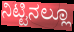
ನಿಟ್ಟಿನಲ್ಲೂ